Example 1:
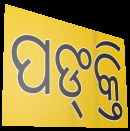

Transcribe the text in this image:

ପଙ୍‍କ୍ତି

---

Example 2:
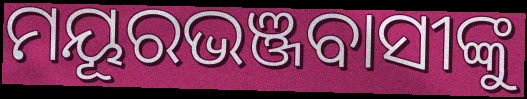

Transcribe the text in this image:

ମୟୂରଭଞ୍ଜବାସୀଙ୍କୁ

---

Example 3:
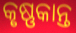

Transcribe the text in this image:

କୃଷ୍ଣକାନ୍ତ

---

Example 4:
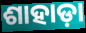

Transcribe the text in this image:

ଶାହାଡ଼ା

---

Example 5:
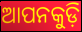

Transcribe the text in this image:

ଆପନକୁଡ଼ି